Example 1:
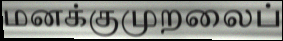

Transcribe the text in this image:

மனக்குமுறலைப்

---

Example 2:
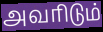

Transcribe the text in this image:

அவரிடும்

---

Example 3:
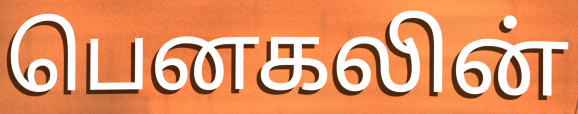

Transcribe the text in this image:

பெனகலின்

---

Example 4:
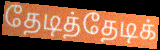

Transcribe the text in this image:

தேடித்தேடிக்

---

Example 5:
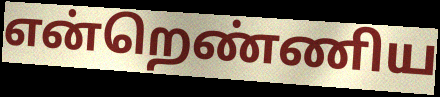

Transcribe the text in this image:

என்றெண்ணிய